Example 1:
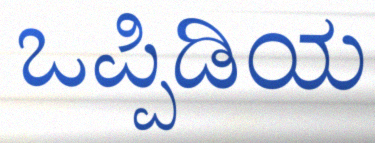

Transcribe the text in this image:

ಒಪ್ಪಿಡಿಯ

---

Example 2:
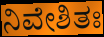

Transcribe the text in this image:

ನಿವೇಶಿತಃ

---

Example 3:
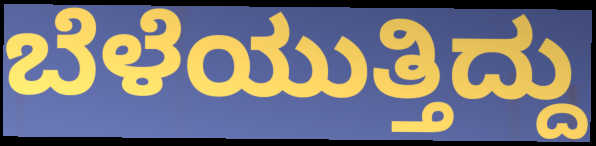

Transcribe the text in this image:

ಬೆಳೆಯುತ್ತಿದ್ದು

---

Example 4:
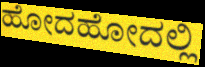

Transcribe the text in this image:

ಹೋದಹೋದಲ್ಲಿ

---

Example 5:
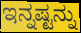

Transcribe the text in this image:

ಇನ್ನಷ್ಟನ್ನು